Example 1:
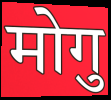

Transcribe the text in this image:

मोगु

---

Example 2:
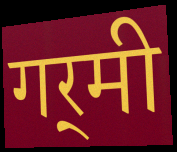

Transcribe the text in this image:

गर्मी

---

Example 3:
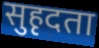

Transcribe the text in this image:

सुहृदता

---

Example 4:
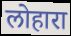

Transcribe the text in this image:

लोहारा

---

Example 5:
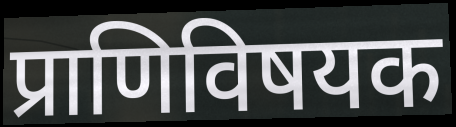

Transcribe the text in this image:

प्राणिविषयक